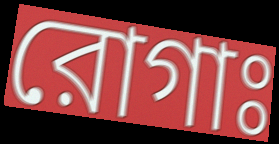
রোগাঃ